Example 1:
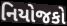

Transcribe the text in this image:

નિયોજકો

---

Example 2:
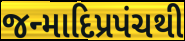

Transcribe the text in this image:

જન્માદિપ્રપંચથી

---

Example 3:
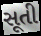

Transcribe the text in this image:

સૂતી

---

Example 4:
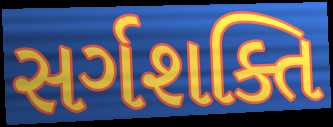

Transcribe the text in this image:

સર્ગશક્તિ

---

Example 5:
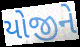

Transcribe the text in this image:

યોજીને